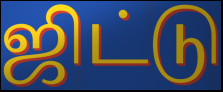
ஜிட்டு